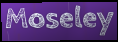
Moseley